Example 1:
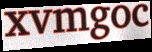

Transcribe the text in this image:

xvmgoc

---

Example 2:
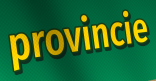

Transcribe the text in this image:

provincie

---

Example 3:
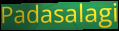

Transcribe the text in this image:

Padasalagi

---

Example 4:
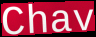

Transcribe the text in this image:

Chav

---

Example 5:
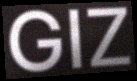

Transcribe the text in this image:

GIZ